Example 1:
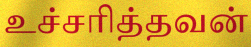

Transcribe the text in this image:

உச்சரித்தவன்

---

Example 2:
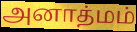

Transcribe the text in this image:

அனாத்மம்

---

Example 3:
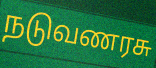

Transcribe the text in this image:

நடுவணரசு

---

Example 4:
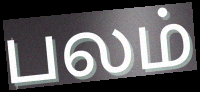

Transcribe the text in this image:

பலம்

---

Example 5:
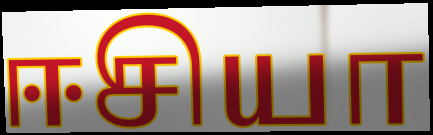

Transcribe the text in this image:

ஈசியா